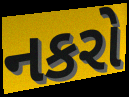
નકરો